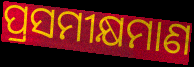
ପ୍ରସମୀକ୍ଷମାଣ